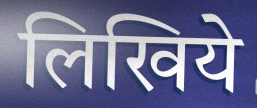
लिखिये